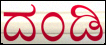
ದಂಡಿ